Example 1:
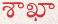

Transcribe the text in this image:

శాఖా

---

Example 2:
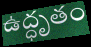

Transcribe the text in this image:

ఉద్ధృతం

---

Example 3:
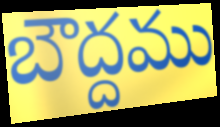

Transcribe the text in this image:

బౌద్దము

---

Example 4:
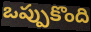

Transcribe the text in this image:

ఒప్పుకొంది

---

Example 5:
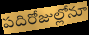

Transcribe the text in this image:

పదిరోజుల్లోనూ